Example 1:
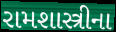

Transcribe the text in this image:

રામશાસ્ત્રીના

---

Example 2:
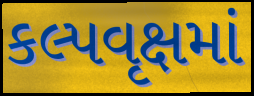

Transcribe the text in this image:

કલ્પવૃક્ષમાં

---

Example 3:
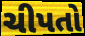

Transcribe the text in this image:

ચીપતો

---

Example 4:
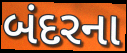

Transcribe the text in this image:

બંદરના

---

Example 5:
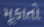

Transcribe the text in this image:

મૂકાતો